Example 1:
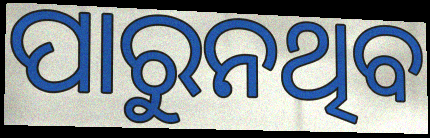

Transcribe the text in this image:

ପାରୁନଥିବ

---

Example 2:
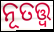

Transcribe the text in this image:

ନୂତତ୍ତ୍ଵ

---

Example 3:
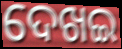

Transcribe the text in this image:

ଦେଖଇ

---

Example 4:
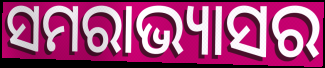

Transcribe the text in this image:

ସମରାଭ୍ୟାସର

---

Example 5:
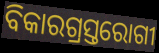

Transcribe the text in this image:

ବିକାରଗ୍ରସ୍ତରୋଗୀ